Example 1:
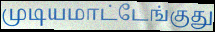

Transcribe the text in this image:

முடியமாட்டேங்குது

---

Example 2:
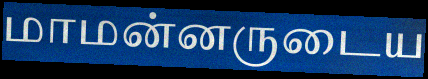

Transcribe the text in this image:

மாமன்னருடைய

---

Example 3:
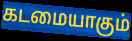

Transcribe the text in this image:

கடமையாகும்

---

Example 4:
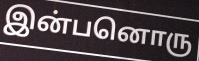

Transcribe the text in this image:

இன்பனொரு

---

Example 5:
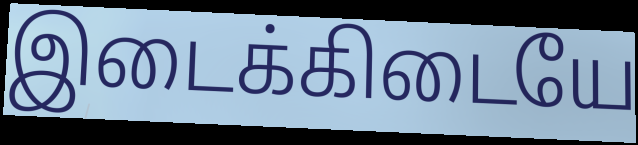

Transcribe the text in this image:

இடைக்கிடையே